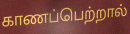
காணப்பெற்றால்